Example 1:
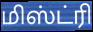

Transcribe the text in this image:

மிஸ்ட்ரி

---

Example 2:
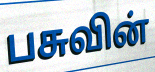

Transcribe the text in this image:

பசுவின்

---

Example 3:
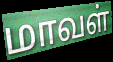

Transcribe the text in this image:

மாவள்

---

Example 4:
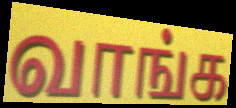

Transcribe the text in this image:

வாங்க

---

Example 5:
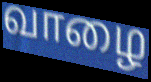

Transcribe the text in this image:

வாழை